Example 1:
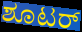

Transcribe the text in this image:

ಶೂಟರ್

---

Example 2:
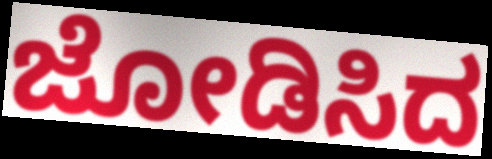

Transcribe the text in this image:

ಜೋಡಿಸಿದ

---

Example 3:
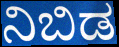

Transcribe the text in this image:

ನಿಬಿಡ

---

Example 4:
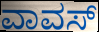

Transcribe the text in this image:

ವಾವಸ್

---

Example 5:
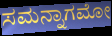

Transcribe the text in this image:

ಸಮನ್ನಾಗಮೋ